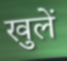
खुलें